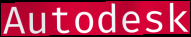
Autodesk